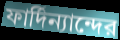
ফার্দিন্যান্দের